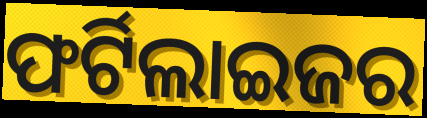
ଫର୍ଟିଲାଇଜର